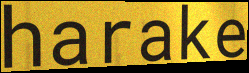
harake